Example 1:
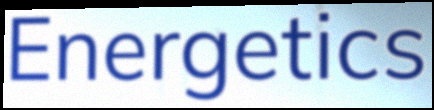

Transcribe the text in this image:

Energetics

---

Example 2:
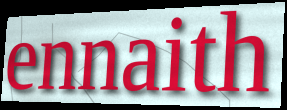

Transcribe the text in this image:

ennaith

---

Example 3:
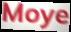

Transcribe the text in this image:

Moye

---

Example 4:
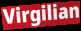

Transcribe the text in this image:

Virgilian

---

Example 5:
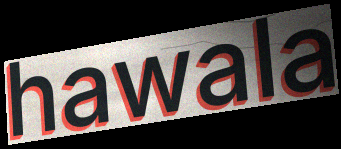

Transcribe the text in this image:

hawala